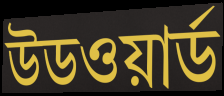
উডওয়ার্ড